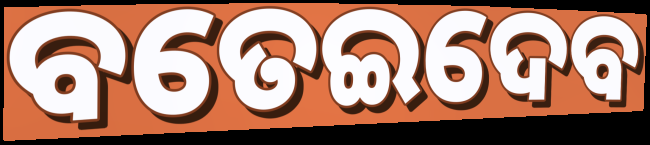
ବତେଇଦେବ